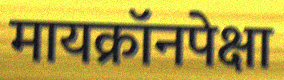
मायक्रॉनपेक्षा